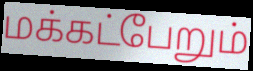
மக்கட்பேறும்